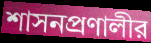
শাসনপ্রণালীর